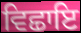
ਵਿਛਾਇ